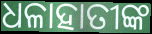
ଧଳାହାତୀଙ୍କ